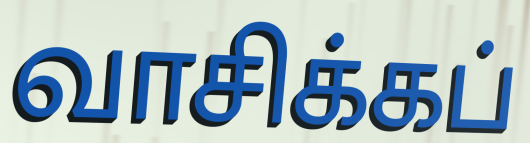
வாசிக்கப்